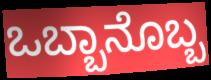
ಒಬ್ಬಾನೊಬ್ಬ